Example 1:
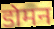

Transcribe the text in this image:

डोमन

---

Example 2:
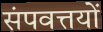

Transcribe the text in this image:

संपवत्तयों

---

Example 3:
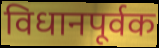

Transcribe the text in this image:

विधानपूर्वक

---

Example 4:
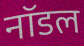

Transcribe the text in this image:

नॉडल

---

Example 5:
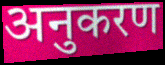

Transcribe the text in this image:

अनुकरण